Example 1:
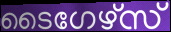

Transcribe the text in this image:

ടൈഗേഴ്സ്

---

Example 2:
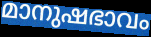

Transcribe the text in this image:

മാനുഷഭാവം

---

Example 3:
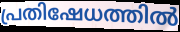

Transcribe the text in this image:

പ്രതിഷേധത്തിൽ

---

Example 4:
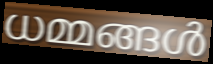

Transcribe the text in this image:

ധമ്മങ്ങൾ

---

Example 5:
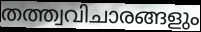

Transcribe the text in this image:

തത്ത്വവിചാരങ്ങളും